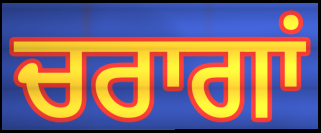
ਚਰਾਗਾਂ